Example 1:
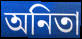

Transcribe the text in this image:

অনিতা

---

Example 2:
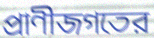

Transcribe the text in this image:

প্রাণীজগতের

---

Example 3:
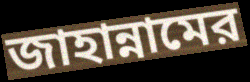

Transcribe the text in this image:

জাহান্নামের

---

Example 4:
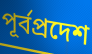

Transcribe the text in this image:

পূর্বপ্রদেশ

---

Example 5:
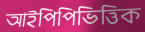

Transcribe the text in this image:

আইপিপিভিত্তিক